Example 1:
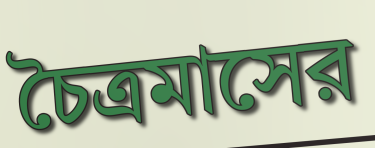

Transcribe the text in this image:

চৈত্রমাসের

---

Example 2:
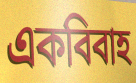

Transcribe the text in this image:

একবিবাহ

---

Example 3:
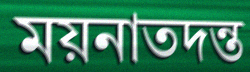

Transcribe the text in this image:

ময়নাতদন্ত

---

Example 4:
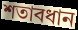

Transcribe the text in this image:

শতাবধান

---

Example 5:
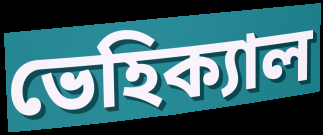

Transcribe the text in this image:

ভেহিক্যাল